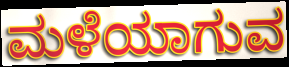
ಮಳೆಯಾಗುವ